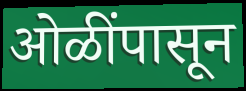
ओळींपासून